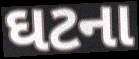
ઘટના